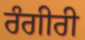
ਰੰਗੀਰੀ